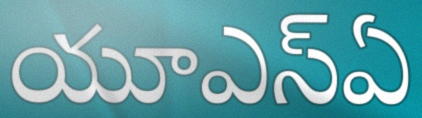
యూఎస్ఏ